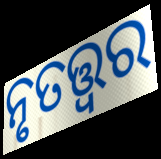
ନୃତତ୍ତ୍ୱର